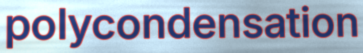
polycondensation